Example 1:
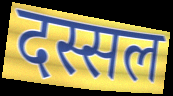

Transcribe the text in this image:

दस्सल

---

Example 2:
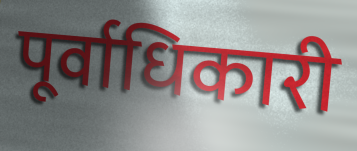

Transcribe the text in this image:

पूर्वाधिकारी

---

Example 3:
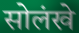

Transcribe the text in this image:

सोलंखे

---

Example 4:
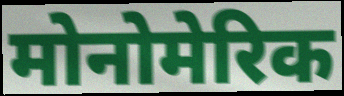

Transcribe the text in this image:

मोनोमेरिक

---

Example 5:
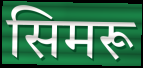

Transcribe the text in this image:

सिमरू